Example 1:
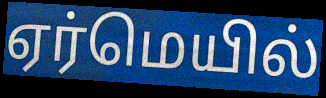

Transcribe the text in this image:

ஏர்மெயில்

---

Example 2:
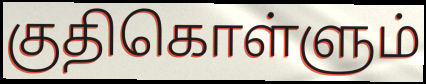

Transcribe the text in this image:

குதிகொள்ளும்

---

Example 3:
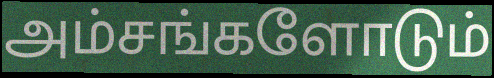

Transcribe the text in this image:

அம்சங்களோடும்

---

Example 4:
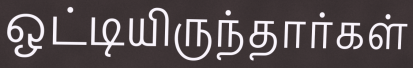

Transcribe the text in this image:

ஒட்டியிருந்தார்கள்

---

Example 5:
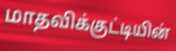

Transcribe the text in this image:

மாதவிக்குட்டியின்